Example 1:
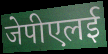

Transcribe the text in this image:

जेपीएलई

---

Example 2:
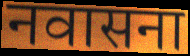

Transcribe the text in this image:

नवासना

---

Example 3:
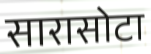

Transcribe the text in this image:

सारासोटा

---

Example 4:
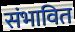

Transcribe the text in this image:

संभावित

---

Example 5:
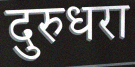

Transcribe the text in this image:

दुरुधरा